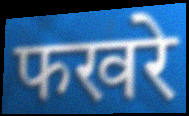
फखरे